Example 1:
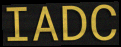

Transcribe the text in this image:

IADC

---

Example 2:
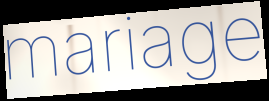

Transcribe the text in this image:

mariage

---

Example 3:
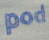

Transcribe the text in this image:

pod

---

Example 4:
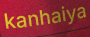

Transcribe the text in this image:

kanhaiya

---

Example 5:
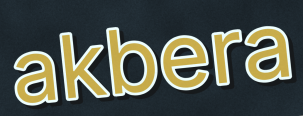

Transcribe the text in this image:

akbera